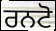
ਰਨਟੋ